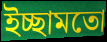
ইচ্ছামতো